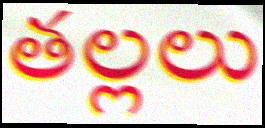
తల్లలు